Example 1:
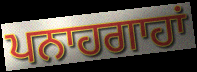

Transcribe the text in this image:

ਪਨਾਹਗਾਹਾਂ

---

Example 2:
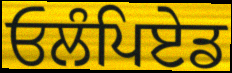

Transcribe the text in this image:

ਓਲੰਪਿਏਡ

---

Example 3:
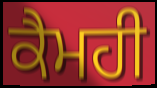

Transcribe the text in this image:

ਕੈਮਹੀ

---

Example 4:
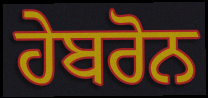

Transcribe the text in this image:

ਹੇਬਰੋਨ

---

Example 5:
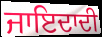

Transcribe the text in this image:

ਜਾਇਦਾਦੀ